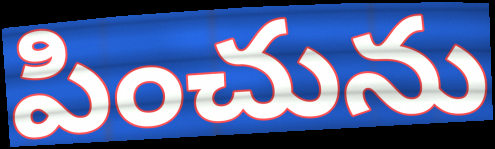
పించును